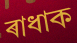
ৰাধাক